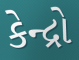
કેન્દ્રો